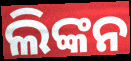
ଲିଙ୍କନ